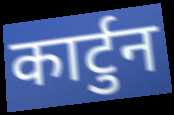
कार्टुन